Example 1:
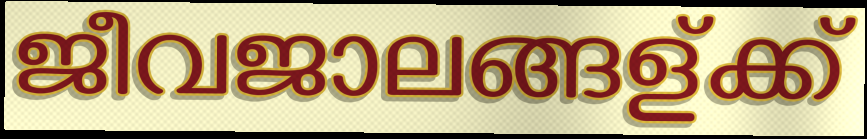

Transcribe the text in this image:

ജീവജാലങ്ങള്ക്ക്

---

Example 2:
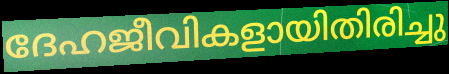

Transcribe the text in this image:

ദേഹജീവികളായിതിരിച്ചു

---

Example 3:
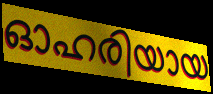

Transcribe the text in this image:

ഓഹരിയായ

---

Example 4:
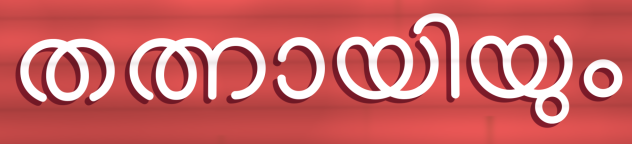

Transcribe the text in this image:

തത്നായിയും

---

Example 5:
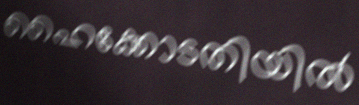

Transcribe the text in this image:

ഹൈക്കോടതിയിൽ